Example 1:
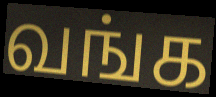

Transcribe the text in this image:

வங்க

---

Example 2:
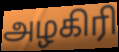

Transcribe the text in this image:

அழகிரி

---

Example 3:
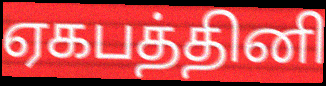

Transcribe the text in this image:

ஏகபத்தினி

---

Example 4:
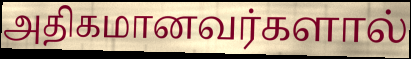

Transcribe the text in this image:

அதிகமானவர்களால்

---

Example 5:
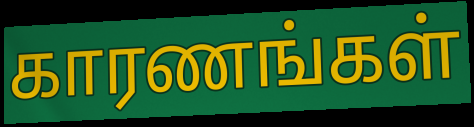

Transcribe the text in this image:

காரணங்கள்